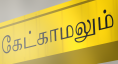
கேட்காமலும்